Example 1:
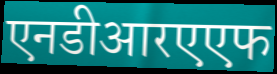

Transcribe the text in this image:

एनडीआरएएफ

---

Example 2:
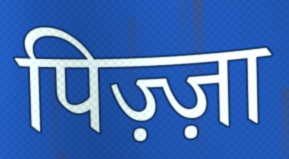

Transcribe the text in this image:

पिज़्ज़ा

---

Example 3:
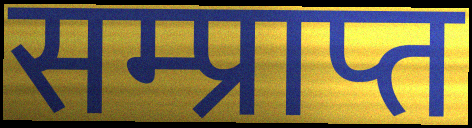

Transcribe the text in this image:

सम्प्राप्त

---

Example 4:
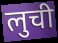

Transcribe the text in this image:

लुची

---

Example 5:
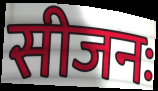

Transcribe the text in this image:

सीजनः